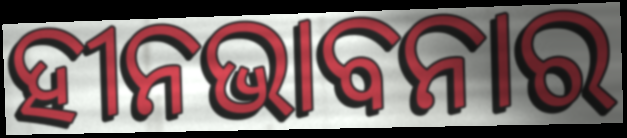
ହୀନଭାବନାର